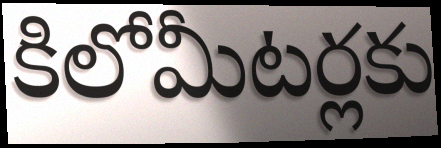
కిలోమీటర్లకు